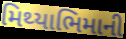
મિથ્યાભિમાની